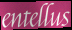
entellus